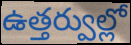
ఉత్తర్వుల్లో